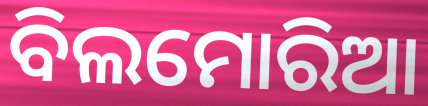
ବିଲମୋରିଆ